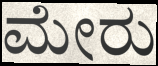
ಮೇರು